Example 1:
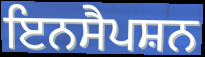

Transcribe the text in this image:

ਇਨਸੈਪਸ਼ਨ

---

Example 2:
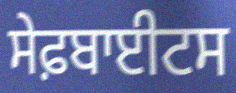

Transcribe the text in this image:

ਸੇਫ਼ਬਾਈਟਸ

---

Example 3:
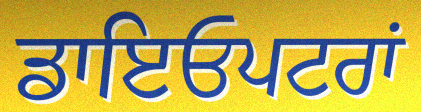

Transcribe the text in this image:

ਡਾਇਓਪਟਰਾਂ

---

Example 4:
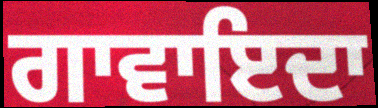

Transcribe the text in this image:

ਗਾਵਾਇਦਾ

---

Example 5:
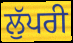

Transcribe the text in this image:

ਲੁੱਪਰੀ